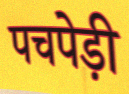
पचपेड़ी